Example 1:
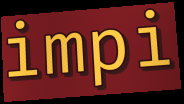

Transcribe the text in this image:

impi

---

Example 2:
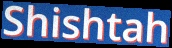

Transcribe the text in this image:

Shishtah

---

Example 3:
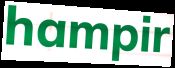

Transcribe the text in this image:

hampir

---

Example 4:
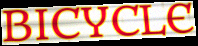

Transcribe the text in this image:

BICYCLE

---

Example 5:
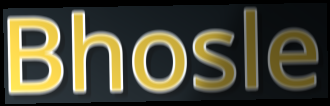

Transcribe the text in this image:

Bhosle